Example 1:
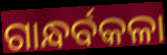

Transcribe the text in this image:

ଗାନ୍ଧର୍ବକଳା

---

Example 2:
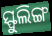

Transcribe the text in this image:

ସ୍ଫୁଲିଙ୍ଗ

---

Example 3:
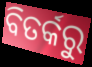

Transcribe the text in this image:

ବିତର୍କରୁ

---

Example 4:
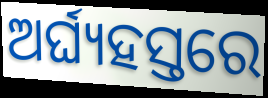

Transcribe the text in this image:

ଅର୍ଘ୍ୟହସ୍ତରେ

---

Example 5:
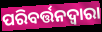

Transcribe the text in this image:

ପରିବର୍ତ୍ତନଦ୍ୱାରା